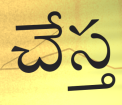
చేస్త